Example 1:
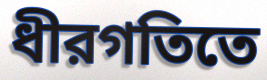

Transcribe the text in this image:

ধীরগতিতে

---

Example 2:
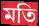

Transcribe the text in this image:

মতি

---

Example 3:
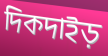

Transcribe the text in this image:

দিকদাইড়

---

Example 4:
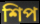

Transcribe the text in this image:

শিপ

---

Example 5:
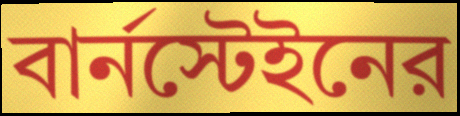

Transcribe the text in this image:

বার্নস্টেইনের